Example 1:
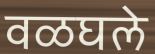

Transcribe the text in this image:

वळघले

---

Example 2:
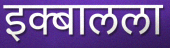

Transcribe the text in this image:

इक्बालला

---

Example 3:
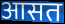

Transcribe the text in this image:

आसत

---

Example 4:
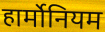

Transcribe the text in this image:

हार्मोनियम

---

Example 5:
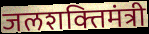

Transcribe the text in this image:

जलशक्तिमंत्री